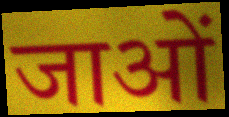
जाओं